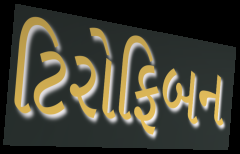
ટિરોફિબન